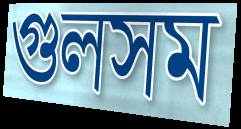
গুলসম